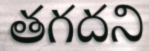
తగదని